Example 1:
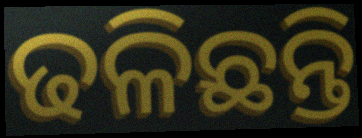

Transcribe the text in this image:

ଢଳିଛନ୍ତି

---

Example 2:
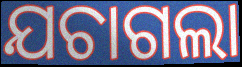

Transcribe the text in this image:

ଯଚାଗଲା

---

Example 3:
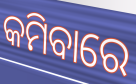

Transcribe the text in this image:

କମିବାରେ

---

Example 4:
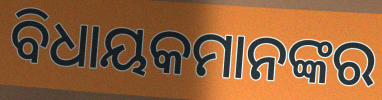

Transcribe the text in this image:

ବିଧାୟକମାନଙ୍କର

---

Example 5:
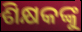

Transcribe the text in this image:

ଶିକ୍ଷକଙ୍କୁ